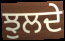
ਝੁਲਦੇ